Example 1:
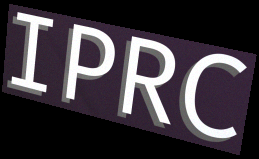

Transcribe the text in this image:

IPRC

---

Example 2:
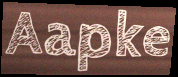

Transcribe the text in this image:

Aapke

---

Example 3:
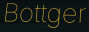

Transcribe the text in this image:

Bottger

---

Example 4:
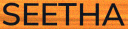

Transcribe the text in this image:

SEETHA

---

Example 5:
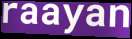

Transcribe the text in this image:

raayan